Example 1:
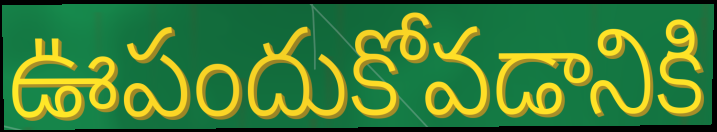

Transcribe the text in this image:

ఊపందుకోవడానికి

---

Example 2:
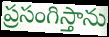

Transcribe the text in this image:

ప్రసంగిస్తాను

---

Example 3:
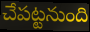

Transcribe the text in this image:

చేపట్టనుంది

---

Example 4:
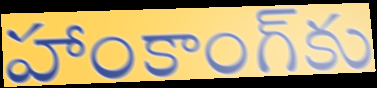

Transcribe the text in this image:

హాంకాంగ్‌కు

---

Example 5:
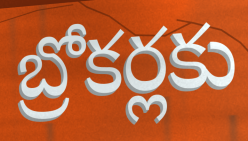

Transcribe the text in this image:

బ్రోకర్లకు